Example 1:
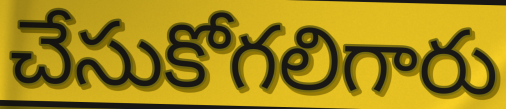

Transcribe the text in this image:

చేసుకోగలిగారు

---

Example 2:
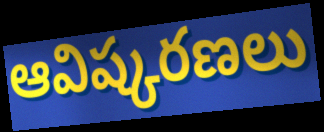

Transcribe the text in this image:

ఆవిష్కరణలు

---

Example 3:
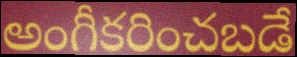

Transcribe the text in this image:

అంగీకరించబడే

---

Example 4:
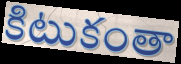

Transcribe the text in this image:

కిటుకంతా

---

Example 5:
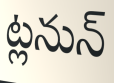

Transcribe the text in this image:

ట్లనున్